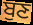
ਬੁਣ